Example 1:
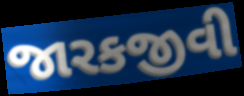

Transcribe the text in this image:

જારકજીવી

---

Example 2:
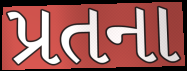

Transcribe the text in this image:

પ્રતના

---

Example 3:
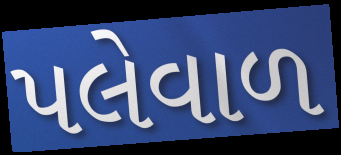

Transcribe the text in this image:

પલેવાળ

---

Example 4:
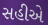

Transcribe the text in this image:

સહીએ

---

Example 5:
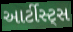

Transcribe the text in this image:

આર્ટીસ્ટ્સ